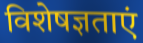
विशेषज्ञताएं